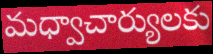
మధ్వాచార్యులకు